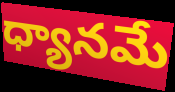
ధ్యానమే